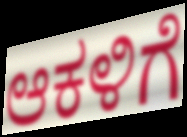
ಆಕಳಿಗೆ